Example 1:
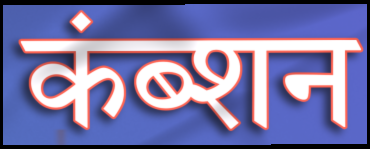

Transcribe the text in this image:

कंब्शन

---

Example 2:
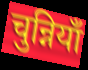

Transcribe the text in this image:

चुन्नियाँ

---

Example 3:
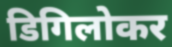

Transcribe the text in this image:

डिगिलोकर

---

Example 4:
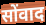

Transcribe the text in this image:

सोंवाद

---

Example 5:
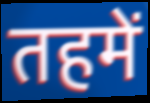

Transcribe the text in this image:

तहमें